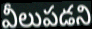
వీలుపడని